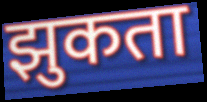
झुकता